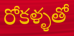
రోకళ్ళతో